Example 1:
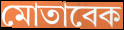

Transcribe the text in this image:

মোতাবেক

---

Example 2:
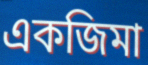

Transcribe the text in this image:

একজিমা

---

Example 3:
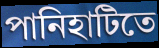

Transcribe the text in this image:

পানিহাটিতে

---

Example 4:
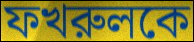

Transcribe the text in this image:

ফখরুলকে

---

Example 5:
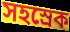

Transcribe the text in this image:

সহস্রেক